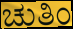
ಚುತಿಂ